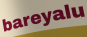
bareyalu